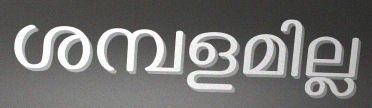
ശമ്പളമില്ല